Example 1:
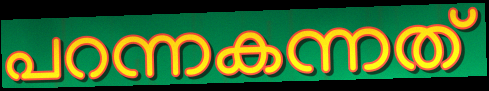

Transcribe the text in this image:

പറന്നകന്നത്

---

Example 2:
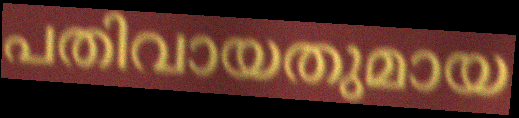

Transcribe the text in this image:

പതിവായതുമായ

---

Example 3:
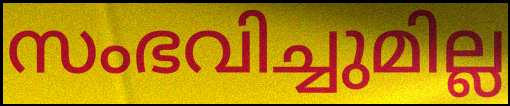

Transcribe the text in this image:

സംഭവിച്ചുമില്ല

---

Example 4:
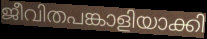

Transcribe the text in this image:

ജീവിതപങ്കാളിയാക്കി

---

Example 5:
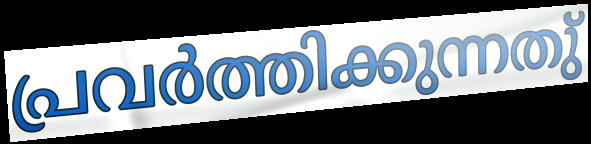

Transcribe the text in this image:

പ്രവർത്തിക്കുന്നതു്